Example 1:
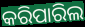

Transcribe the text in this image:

କରିପାରିଲ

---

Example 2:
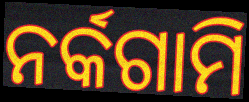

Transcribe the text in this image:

ନର୍କଗାମି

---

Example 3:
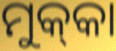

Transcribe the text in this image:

ମୁକ୍‌କା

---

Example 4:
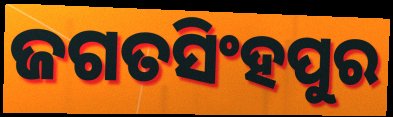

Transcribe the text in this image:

ଜଗତସିଂହପୁର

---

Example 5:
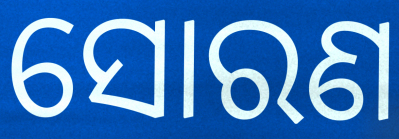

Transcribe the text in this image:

ସୋରଣ